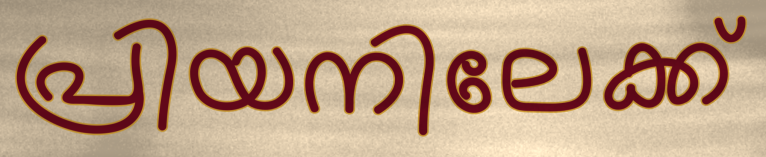
പ്രിയനിലേക്ക്